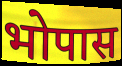
भोपास